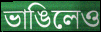
ভাঙিলেও